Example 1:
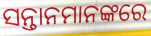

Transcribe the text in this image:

ସନ୍ତାନମାନଙ୍କରେ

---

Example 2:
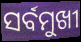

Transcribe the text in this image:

ସର୍ବମୁଖୀ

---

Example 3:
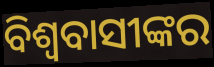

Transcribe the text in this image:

ବିଶ୍ୱବାସୀଙ୍କର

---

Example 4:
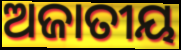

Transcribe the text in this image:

ଅଜାତୀୟ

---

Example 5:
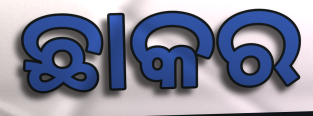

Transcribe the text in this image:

ଛାକର